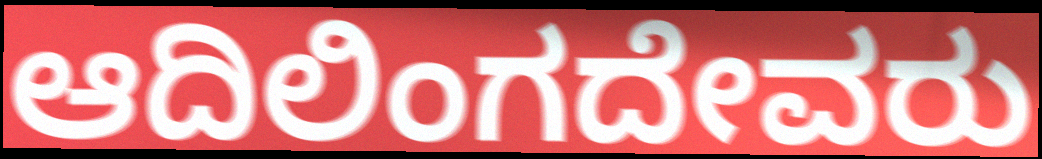
ಆದಿಲಿಂಗದೇವರು